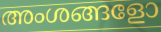
അംശങ്ങളോ